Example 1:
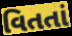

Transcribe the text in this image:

વિતતાં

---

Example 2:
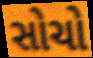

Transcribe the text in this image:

સોચો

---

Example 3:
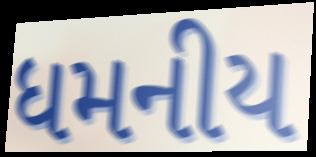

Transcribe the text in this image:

ધમનીય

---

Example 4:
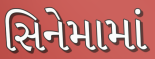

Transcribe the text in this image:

સિનેમામાં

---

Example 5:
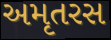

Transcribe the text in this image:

અમૃતરસ